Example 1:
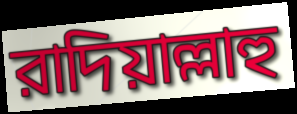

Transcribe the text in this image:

রাদিয়াল্লাহু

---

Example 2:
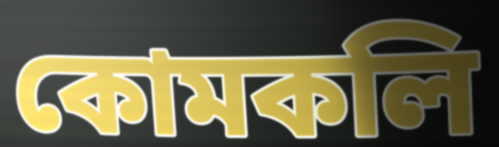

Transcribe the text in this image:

কোমকলি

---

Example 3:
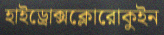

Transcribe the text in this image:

হাইড্রোক্সক্লোরোকুইন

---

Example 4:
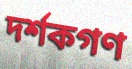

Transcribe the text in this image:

দর্শকগণ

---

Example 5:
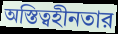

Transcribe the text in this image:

অস্তিত্বহীনতার